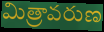
మిత్రావరుణ